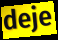
deje